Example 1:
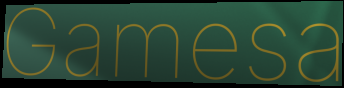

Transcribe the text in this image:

Gamesa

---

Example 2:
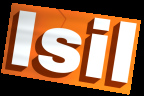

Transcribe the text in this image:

Isil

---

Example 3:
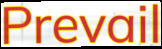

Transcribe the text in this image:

Prevail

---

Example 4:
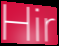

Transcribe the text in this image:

Hir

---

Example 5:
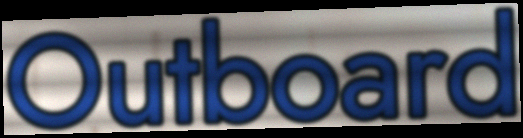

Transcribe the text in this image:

Outboard